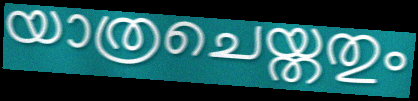
യാത്രചെയ്തതും